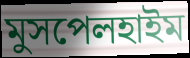
মুসপেলহাইম